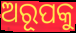
ଅରୂପକୁ